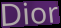
Dior